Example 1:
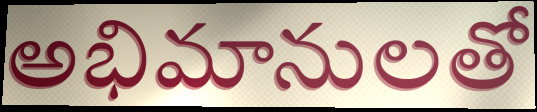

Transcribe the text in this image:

అభిమానులతో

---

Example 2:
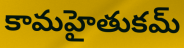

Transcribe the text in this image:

కామహైతుకమ్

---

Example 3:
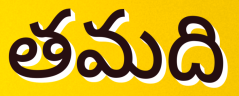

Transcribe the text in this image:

తమది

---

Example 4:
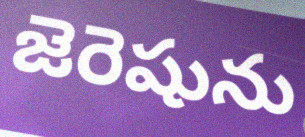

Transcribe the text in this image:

జెరెషును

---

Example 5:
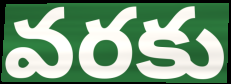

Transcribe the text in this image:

వరకు